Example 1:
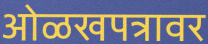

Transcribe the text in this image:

ओळखपत्रावर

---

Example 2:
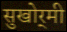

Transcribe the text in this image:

सुखोर्मी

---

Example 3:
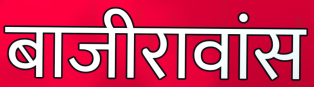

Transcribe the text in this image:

बाजीरावांस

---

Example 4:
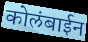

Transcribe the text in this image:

कोलंबाईन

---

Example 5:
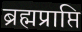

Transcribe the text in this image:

ब्रह्मप्राप्ति